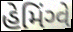
હેમિંગ્વે